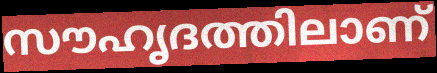
സൗഹൃദത്തിലാണ്